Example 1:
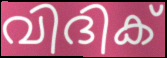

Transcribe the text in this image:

വിദിക്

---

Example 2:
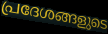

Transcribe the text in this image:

പ്രദേശങ്ങളുടെ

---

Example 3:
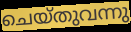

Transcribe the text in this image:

ചെയ്തുവന്നു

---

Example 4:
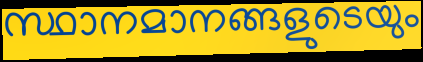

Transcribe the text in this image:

സ്ഥാനമാനങ്ങളുടെയും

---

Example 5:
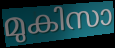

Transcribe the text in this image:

മുകിസാ